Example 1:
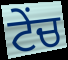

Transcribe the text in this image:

ਟੇਂਚ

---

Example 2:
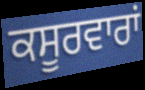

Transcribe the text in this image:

ਕਸੂਰਵਾਰਾਂ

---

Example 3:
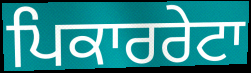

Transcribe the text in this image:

ਪਿਕਾਰਰੇਟਾ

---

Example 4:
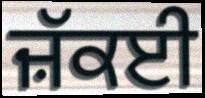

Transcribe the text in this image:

ਜ਼ੱਕਈ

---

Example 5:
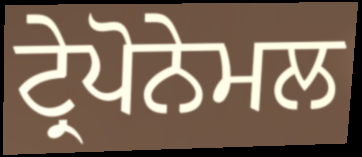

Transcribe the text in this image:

ਟ੍ਰੇਪੋਨੇਮਲ